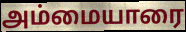
அம்மையாரை